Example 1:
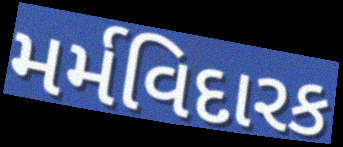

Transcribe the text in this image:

મર્મવિદારક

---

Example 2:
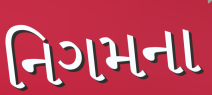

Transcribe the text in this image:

નિગમના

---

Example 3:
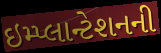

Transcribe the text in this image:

ઇમ્પ્લાન્ટેશનની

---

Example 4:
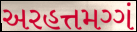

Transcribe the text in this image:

અરહત્તમગ્ગં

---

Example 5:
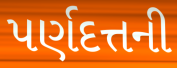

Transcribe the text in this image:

પર્ણદત્તની